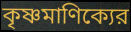
কৃষ্ণমাণিক্যের